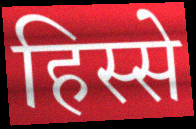
हिस्से